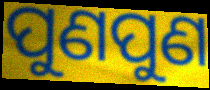
ପୁଣପୁଣ